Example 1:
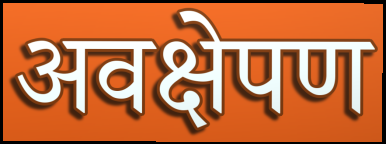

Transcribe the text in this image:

अवक्षेपण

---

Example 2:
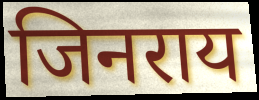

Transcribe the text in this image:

जिनराय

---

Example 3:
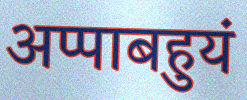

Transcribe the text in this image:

अप्पाबहुयं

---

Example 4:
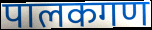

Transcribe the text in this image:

पालकगण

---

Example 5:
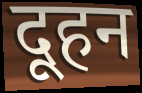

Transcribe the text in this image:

दूहन